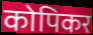
कोपिकर